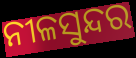
ନୀଳସୁନ୍ଦର